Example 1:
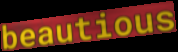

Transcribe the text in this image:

beautious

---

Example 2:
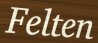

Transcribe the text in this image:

Felten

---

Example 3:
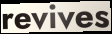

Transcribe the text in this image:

revives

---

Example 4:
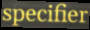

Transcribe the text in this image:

specifier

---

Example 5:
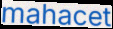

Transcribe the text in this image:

mahacet